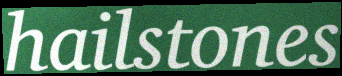
hailstones